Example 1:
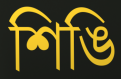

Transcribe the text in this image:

শিঙি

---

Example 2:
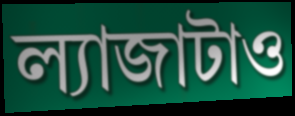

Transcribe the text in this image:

ল্যাজাটাও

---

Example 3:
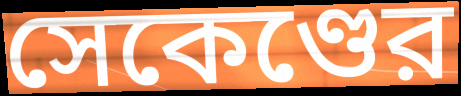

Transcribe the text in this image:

সেকেণ্ডের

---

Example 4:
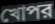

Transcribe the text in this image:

খোপর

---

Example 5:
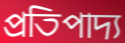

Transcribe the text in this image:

প্রতিপাদ্য